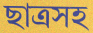
ছাত্রসহ